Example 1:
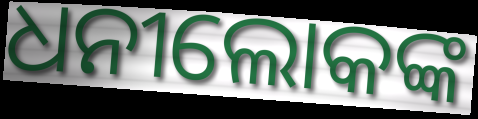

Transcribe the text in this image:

ଧନୀଲୋକଙ୍କ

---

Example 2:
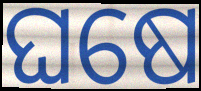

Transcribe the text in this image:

ଘଷେ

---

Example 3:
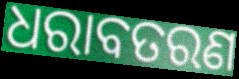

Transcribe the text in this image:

ଧରାବତରଣ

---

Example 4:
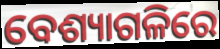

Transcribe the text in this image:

ବେଶ୍ୟାଗଳିରେ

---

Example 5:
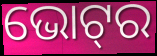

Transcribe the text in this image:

ଭୋଟ୍‍ର